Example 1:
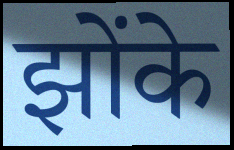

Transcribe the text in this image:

झोंके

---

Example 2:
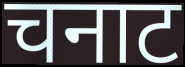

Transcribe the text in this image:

चनाट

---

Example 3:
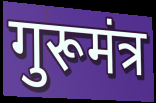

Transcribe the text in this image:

गुरूमंत्र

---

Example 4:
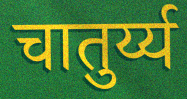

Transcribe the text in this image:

चातुर्य्य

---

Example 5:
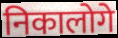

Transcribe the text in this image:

निकालोगे